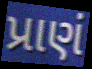
પ્રાણં